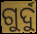
ଗୁର୍ଦୁ